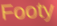
Footy